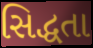
સિદ્ધતા